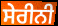
ਸੇਰੀਨੀ